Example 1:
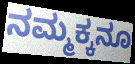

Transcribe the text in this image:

ನಮ್ಮಕ್ಕನೂ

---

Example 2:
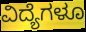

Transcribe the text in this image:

ವಿದ್ಯೆಗಳೂ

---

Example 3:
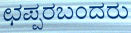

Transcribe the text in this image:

ಛಪ್ಪರಬಂದರು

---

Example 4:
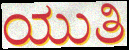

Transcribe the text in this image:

ಯುತಿ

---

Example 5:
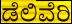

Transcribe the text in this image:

ಡೆಲಿವೆರಿ